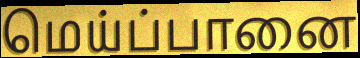
மெய்ப்பானை